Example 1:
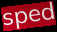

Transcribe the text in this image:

sped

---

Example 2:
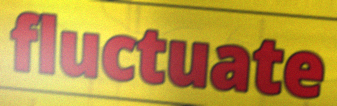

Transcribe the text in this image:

fluctuate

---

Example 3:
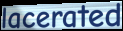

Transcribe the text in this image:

lacerated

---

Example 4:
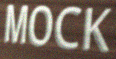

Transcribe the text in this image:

MOCK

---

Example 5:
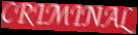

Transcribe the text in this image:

CRIMINAL